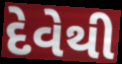
દેવેથી